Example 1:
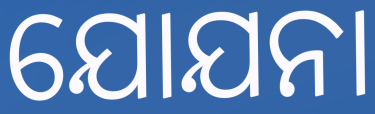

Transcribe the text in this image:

ଯୋଯନା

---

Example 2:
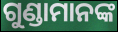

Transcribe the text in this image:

ଗୁଣ୍ଡାମାନଙ୍କ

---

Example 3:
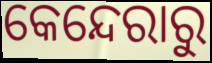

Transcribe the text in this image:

କେନ୍ଦେରାରୁ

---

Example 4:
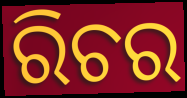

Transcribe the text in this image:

ରିଚର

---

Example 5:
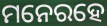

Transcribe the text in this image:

ମନେରହେ